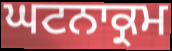
ਘਟਨਾਕ੍ਰਮ